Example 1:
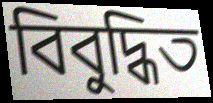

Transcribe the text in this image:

বিবুদ্ধিত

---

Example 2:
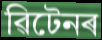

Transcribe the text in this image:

ৱিটেনৰ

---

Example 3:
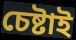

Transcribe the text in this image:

চেষ্টাই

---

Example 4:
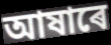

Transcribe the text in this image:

আষাৰে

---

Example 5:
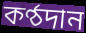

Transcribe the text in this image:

কণ্ঠদান